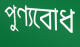
পুণ্যবোধ